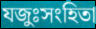
যজুঃসংহিতা